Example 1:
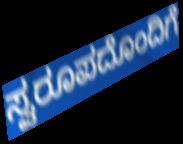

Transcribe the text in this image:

ಸ್ವರೂಪದೊಂದಿಗೆ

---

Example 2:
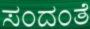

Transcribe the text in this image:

ಸಂದಂತೆ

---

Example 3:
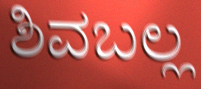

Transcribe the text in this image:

ಶಿವಬಲ್ಲ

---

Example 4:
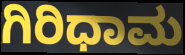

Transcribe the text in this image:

ಗಿರಿಧಾಮ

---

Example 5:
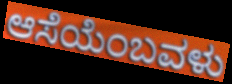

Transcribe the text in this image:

ಆಸೆಯೆಂಬವಳು